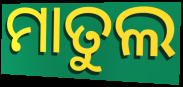
ମାତୁଲ